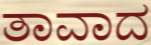
ತಾವಾದ